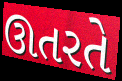
ઊતરતે